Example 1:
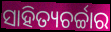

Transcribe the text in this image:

ସାହିତ୍ୟଚର୍ଚ୍ଚାର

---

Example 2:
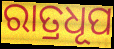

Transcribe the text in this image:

ରାତ୍ରଧୂପ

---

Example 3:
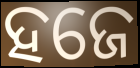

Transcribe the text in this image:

ହଜେ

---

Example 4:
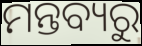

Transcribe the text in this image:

ମନ୍ତବ୍ୟରୁ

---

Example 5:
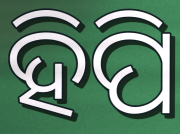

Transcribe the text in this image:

ହିପି